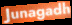
Junagadh